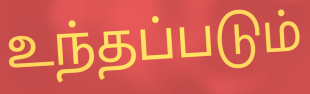
உந்தப்படும்